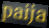
paija